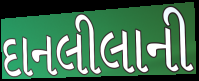
દાનલીલાની